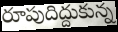
రూపుదిద్దుకున్న